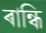
ৰান্ধি